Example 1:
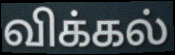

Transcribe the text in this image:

விக்கல்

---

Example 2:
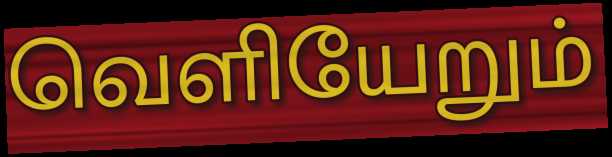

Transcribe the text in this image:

வெளியேறும்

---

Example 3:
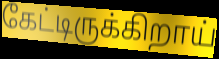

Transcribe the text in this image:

கேட்டிருக்கிறாய்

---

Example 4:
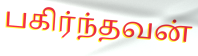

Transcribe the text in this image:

பகிர்ந்தவன்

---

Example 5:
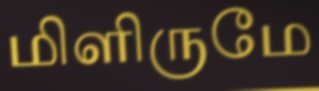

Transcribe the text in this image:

மிளிருமே